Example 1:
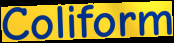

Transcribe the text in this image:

Coliform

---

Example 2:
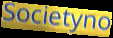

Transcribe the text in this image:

Societyno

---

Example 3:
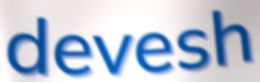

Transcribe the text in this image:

devesh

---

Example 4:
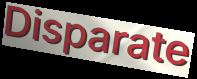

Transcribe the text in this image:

Disparate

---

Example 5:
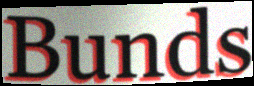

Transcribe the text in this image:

Bunds